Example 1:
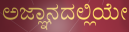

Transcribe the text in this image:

ಅಜ್ಞಾನದಲ್ಲಿಯೇ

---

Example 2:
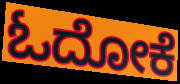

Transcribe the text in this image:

ಓದೋಕೆ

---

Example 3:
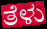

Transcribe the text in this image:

ತೆಳು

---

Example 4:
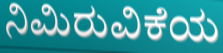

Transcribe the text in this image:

ನಿಮಿರುವಿಕೆಯ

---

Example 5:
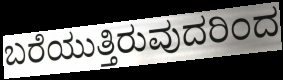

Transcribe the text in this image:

ಬರೆಯುತ್ತಿರುವುದರಿಂದ